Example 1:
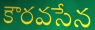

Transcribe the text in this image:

కౌరవసేన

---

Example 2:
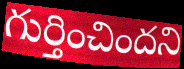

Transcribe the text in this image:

గుర్తించిందని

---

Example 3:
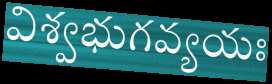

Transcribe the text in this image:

విశ్వభుగవ్యయః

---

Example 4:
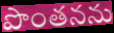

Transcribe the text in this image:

పొంతనను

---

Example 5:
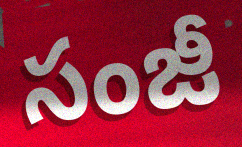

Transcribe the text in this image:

సంజీ